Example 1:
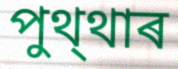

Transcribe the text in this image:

পুথ্থাৰ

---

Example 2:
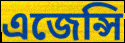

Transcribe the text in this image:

এজেন্সি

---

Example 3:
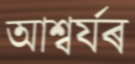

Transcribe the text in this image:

আশ্বৰ্যৰ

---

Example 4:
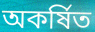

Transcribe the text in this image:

অকৰ্ষিত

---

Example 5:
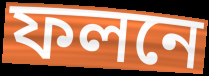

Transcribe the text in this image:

ফলনে